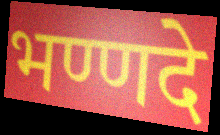
भण्णदे